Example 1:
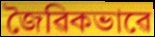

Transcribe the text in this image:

জৈৱিকভাৱে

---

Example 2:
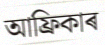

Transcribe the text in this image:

আফ্ৰিকাৰ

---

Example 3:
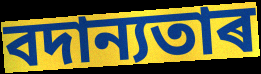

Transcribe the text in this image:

বদান্যতাৰ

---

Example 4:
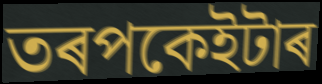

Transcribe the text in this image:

তৰপকেইটাৰ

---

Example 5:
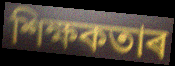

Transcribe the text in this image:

শিক্ষকতাৰ